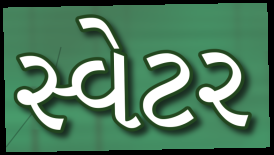
સ્વેટર